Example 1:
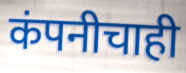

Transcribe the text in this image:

कंपनीचाही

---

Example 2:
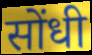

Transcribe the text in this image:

सोंधी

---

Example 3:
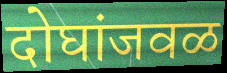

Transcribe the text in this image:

दोघांजवळ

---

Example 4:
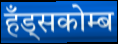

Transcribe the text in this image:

हँड्सकोम्ब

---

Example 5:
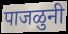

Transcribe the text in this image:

पाजळुनी